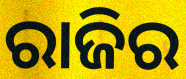
ରାଜିର